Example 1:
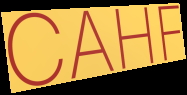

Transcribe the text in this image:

CAHF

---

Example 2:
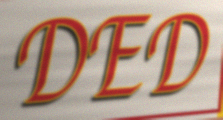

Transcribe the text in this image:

DED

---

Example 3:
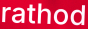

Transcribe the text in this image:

rathod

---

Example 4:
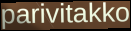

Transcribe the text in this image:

parivitakko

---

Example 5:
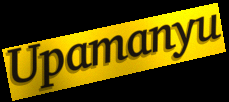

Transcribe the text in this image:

Upamanyu